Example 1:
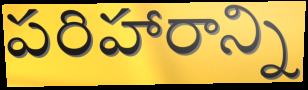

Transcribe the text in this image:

పరిహారాన్ని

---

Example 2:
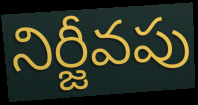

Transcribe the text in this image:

నిర్జీవపు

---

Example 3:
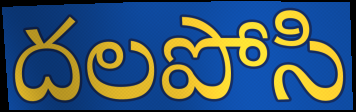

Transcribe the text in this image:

దలపోసి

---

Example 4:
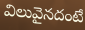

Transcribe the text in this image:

విలువైనదంటే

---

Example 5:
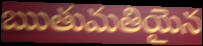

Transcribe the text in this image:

ఋతుమతియైన